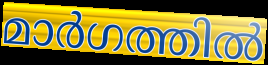
മാർഗത്തിൽ